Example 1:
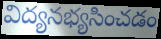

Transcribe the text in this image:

విద్యనభ్యసించడం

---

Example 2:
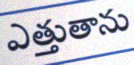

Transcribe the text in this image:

ఎత్తుతాను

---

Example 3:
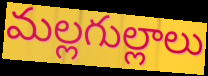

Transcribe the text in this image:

మల్లగుల్లాలు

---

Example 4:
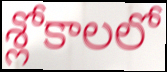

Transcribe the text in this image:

శ్లోకాలలో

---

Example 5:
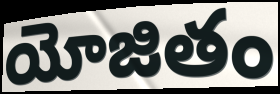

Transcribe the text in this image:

యోజితం